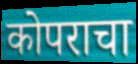
कोपराचा